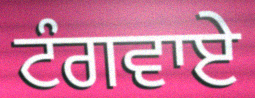
ਟੰਗਵਾਏ